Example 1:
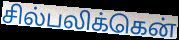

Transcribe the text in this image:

சில்பலிக்கென்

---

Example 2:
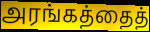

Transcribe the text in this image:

அரங்கத்தைத்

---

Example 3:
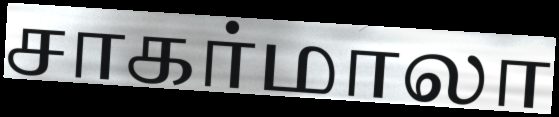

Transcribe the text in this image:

சாகர்மாலா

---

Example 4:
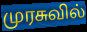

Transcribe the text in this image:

முரசுவில்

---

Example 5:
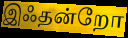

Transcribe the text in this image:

இஃதன்றோ